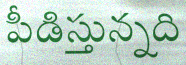
పీడిస్తున్నది